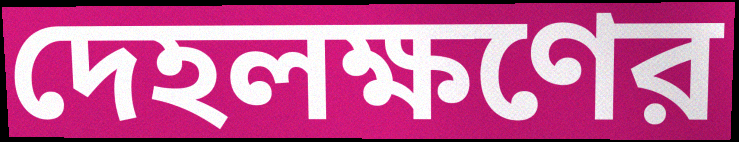
দেহলক্ষণের